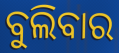
ବୁଲିବାର